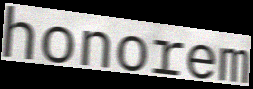
honorem